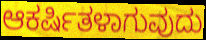
ಆಕರ್ಷಿತಳಾಗುವುದು